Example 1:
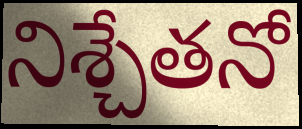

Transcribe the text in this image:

నిశ్చేతనో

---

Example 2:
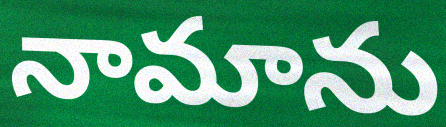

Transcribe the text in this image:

నామాను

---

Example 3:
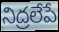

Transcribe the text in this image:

నిద్రలేపే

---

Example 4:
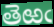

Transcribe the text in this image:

తెఱఁ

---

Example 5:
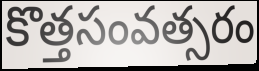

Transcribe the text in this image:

కొత్తసంవత్సరం